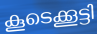
കൂടെക്കൂട്ടി